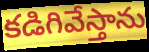
కడిగివేస్తాను